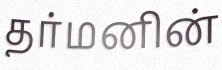
தர்மனின்